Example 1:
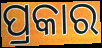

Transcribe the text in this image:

ପ୍ରକାର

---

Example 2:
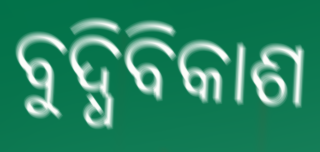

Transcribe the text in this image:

ବୁଦ୍ଧିବିକାଶ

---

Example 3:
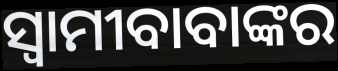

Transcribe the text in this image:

ସ୍ଵାମୀବାବାଙ୍କର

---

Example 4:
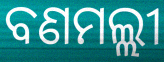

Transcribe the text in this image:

ବଣମଲ୍ଲୀ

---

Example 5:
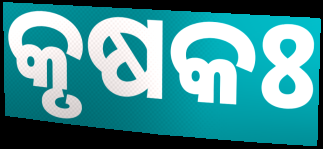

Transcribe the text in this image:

କୃଷକଃ